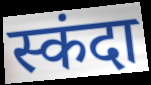
स्कंदा